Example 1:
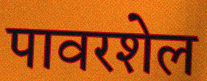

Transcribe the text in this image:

पावरशेल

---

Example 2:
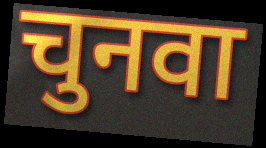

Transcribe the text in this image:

चुनवा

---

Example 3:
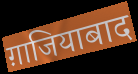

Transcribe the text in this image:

ग़ाजियाबाद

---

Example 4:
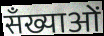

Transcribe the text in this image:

सँख्याओं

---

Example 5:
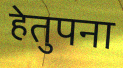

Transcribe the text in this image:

हेतुपना